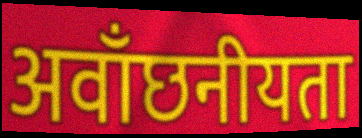
अवाँछनीयता